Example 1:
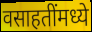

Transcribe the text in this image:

वसाहतींमध्ये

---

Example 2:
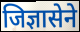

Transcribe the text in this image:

जिज्ञासेने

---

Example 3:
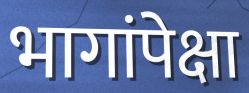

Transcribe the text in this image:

भागांपेक्षा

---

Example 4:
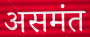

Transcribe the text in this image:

असमंत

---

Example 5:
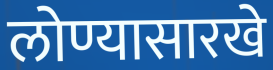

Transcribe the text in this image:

लोण्यासारखे